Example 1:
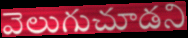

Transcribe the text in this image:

వెలుగుచూడని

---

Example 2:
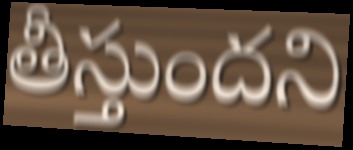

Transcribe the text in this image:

తీస్తుందని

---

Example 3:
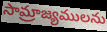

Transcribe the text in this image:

సామ్రాజ్యములను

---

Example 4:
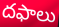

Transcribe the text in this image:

దఫాలు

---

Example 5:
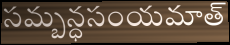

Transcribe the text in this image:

సమ్బన్ధసంయమాత్